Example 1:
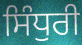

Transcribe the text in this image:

ਸਿੰਧੁਰੀ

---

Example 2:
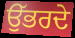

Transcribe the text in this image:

ਉੱਭਰਦੇ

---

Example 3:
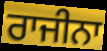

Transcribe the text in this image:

ਰਾਜੀਨਾ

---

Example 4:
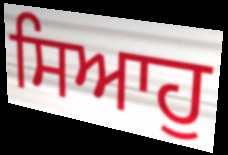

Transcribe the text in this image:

ਸਿਆਹੁ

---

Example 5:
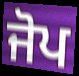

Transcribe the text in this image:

ਜੋਪ